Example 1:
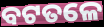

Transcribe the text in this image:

ବଟତଳେ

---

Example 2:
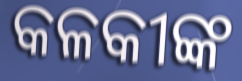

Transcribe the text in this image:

କଳକୀଙ୍କ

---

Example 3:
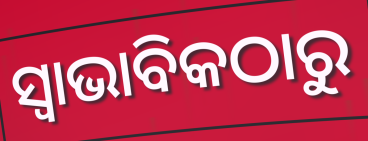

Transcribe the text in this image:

ସ୍ୱାଭାବିକଠାରୁ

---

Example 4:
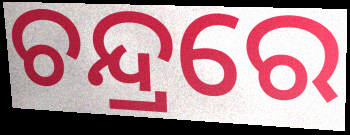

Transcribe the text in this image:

ଚନ୍ଦ୍ରରେ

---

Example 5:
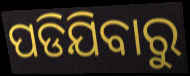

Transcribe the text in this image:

ପଡିଯିବାରୁ